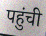
पहुंची